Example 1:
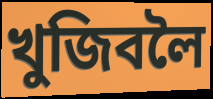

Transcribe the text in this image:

খুজিবলৈ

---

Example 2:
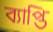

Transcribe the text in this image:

ব্যাপ্তি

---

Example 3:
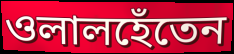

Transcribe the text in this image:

ওলালহেঁতেন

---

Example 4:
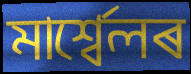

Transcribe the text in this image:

মাৰ্শ্বেলৰ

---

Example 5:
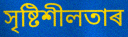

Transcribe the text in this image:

সৃষ্টিশীলতাৰ